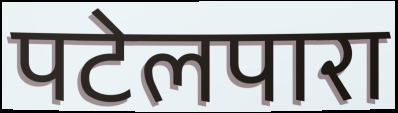
पटेलपारा